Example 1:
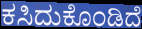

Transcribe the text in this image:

ಕಸಿದುಕೊಂಡಿದೆ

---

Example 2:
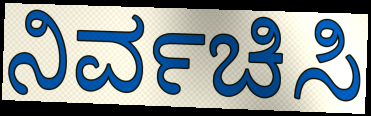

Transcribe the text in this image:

ನಿರ್ವಚಿಸಿ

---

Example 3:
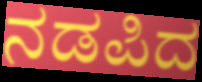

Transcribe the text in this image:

ನಡಪಿದ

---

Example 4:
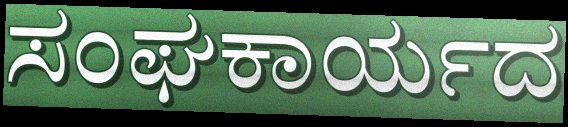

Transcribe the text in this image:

ಸಂಘಕಾರ್ಯದ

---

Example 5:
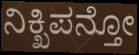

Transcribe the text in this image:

ನಿಕ್ಖಿಪನ್ತೋ